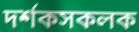
দৰ্শকসকলক